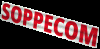
SOPPECOM